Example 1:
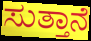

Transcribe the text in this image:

ಸುತ್ತಾನೆ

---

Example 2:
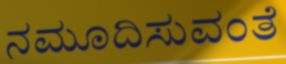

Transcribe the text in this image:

ನಮೂದಿಸುವಂತೆ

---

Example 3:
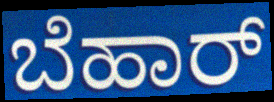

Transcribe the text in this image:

ಬೆಹಾರ್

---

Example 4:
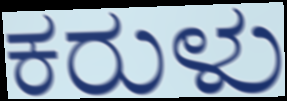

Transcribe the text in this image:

ಕರುಳು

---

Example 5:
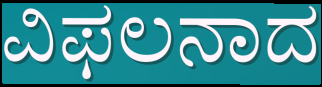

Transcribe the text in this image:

ವಿಫಲನಾದ